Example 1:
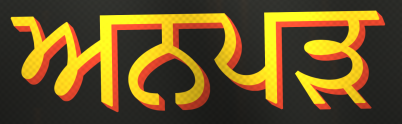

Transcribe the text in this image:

ਅਨਪੜ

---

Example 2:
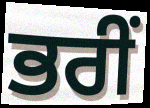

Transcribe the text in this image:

ਭਰੀਂ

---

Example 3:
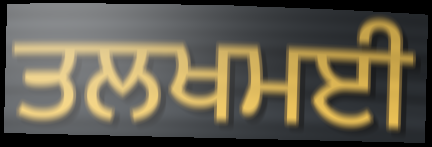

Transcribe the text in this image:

ਤਲਖਮਈ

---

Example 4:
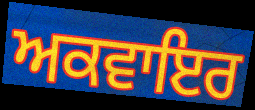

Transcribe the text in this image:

ਅਕਵਾਇਰ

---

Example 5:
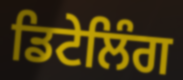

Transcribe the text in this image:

ਡਿਟੇਲਿੰਗ